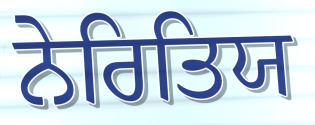
ਨੇਰਿਤਿਯ